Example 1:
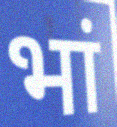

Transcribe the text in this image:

भां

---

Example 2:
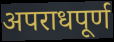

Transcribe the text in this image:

अपराधपूर्ण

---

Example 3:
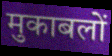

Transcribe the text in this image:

मुकाबलों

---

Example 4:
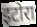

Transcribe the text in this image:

इटोरा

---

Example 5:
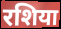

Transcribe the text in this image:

रशिया